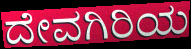
ದೇವಗಿರಿಯ